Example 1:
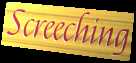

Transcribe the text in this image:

Screeching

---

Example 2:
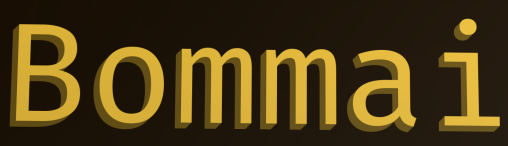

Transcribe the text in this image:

Bommai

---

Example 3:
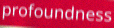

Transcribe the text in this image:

profoundness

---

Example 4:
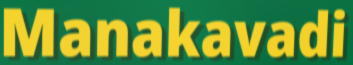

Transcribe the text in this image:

Manakavadi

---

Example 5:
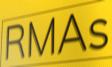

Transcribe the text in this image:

RMAs